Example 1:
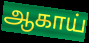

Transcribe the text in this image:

ஆகாய்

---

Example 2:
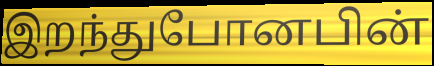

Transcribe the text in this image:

இறந்துபோனபின்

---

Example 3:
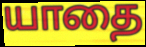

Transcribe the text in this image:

யாதை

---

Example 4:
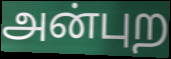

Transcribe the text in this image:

அன்புற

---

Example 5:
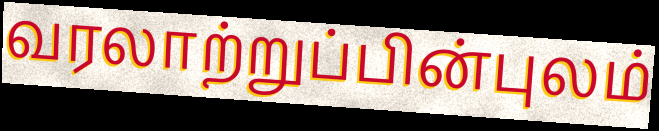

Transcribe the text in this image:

வரலாற்றுப்பின்புலம்